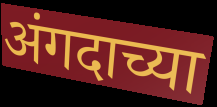
अंगदाच्या